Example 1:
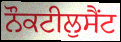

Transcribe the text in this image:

ਨੌਕਟੀਲੁਸੈਂਟ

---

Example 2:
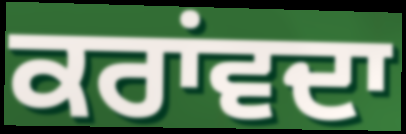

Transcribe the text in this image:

ਕਰਾਂਵਦਾ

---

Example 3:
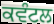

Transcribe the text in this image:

ਕਵੰਟਲ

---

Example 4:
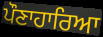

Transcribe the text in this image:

ਪੌਣਾਹਾਰਿਆ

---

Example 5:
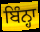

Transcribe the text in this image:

ਬਿੰਨ੍ਹਾ